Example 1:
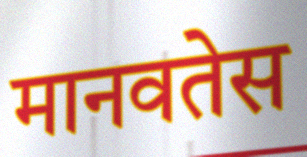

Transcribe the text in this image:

मानवतेस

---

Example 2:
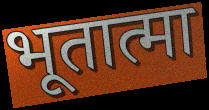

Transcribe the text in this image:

भूतात्मा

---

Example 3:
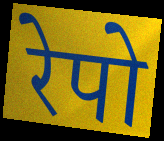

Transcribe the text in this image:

रेपो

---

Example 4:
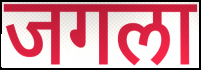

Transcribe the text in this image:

जगला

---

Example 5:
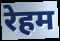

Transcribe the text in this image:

रेहम